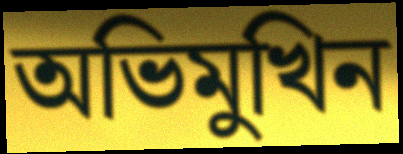
অভিমুখিন